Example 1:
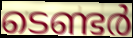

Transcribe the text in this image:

ടെണ്ടർ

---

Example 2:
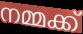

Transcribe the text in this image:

നമ്മക്ക്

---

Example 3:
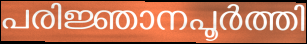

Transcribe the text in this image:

പരിജ്ഞാനപൂർത്തി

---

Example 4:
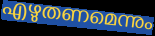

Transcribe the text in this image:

എഴുതണമെന്നും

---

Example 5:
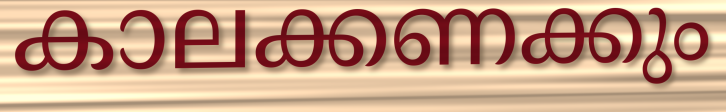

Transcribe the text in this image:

കാലക്കണക്കും